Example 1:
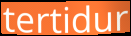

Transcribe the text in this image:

tertidur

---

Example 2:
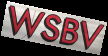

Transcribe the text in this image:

WSBV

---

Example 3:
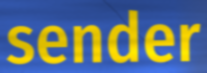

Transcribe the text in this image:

sender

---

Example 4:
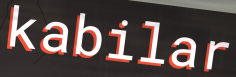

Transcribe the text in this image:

kabilar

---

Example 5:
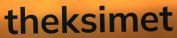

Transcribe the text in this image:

theksimet